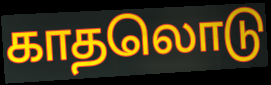
காதலொடு